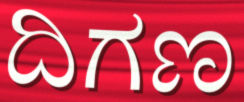
ದಿಗಣ